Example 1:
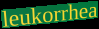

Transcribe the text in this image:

leukorrhea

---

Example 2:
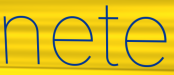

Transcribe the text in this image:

nete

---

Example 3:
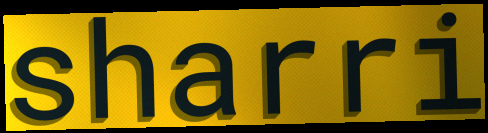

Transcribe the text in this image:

sharri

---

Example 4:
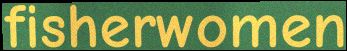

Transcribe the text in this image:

fisherwomen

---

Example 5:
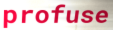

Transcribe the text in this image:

profuse